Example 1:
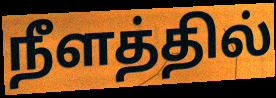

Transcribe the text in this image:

நீளத்தில்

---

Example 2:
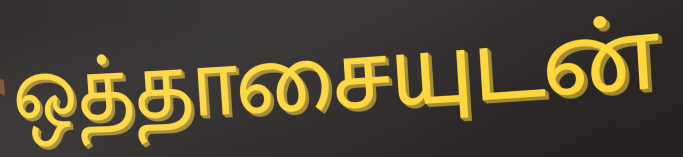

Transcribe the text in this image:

ஒத்தாசையுடன்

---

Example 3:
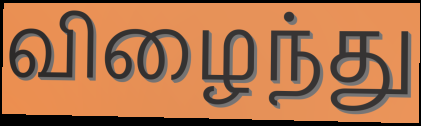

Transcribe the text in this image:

விழைந்து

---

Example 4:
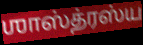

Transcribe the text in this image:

ஶாஸ்த்ரஸ்ய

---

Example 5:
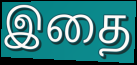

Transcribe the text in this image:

இதை